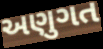
અણુગત